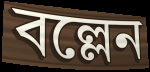
বল্লেন